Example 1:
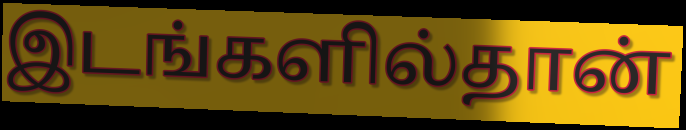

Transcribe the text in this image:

இடங்களில்தான்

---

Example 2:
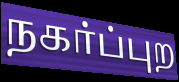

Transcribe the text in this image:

நகர்ப்புற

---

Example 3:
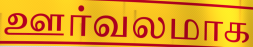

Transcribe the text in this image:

ஊர்வலமாக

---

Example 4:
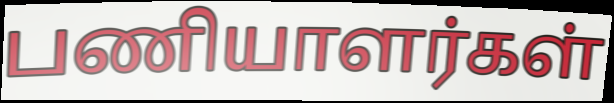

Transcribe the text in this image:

பணியாளர்கள்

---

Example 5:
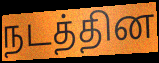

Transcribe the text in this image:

நடத்தின